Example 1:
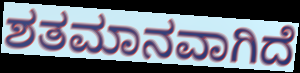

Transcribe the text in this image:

ಶತಮಾನವಾಗಿದೆ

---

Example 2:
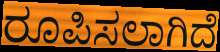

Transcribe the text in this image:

ರೂಪಿಸಲಾಗಿದೆ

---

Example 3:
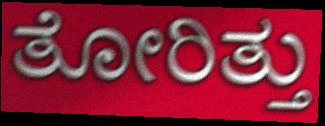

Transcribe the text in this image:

ತೋರಿತ್ತು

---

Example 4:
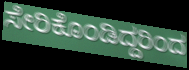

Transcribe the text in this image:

ಸೇರಿಕೊಂಡಿದ್ದರಿಂದ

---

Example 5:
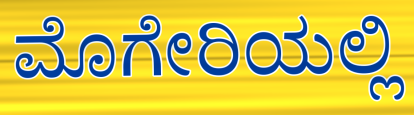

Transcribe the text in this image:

ಮೊಗೇರಿಯಲ್ಲಿ